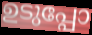
ഉടുപ്പോ